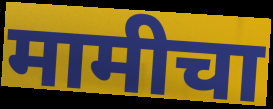
मामीचा